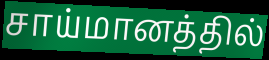
சாய்மானத்தில்